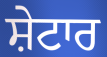
ਸ਼ੇਟਾਰ